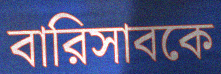
বারিসাবকে